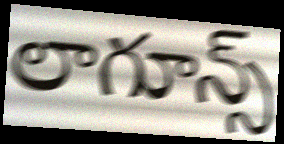
లాగూన్స్